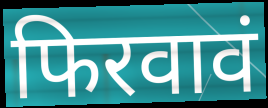
फिरवावं